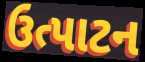
ઉત્પાટન